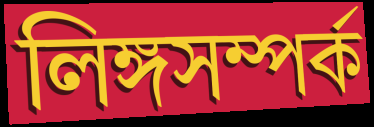
লিঙ্গসম্পর্ক